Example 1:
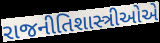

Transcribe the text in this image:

રાજનીતિશાસ્ત્રીઓએ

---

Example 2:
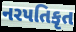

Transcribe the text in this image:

નરપતિકૃત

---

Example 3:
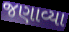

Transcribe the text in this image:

જણાવ્યા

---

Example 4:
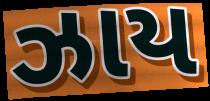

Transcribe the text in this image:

ઝાય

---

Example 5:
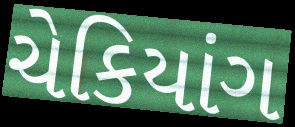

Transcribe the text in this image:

ચેકિયાંગ